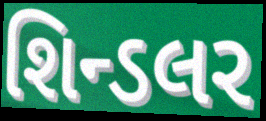
શિન્ડલર